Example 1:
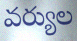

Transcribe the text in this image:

వర్యుల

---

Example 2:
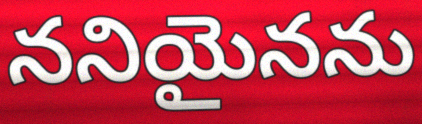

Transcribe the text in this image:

ననియైనను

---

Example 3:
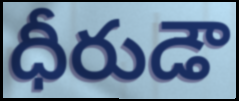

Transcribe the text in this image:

ధీరుడౌ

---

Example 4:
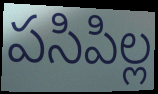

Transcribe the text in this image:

పసిపిల్ల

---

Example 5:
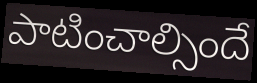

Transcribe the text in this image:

పాటించాల్సిందే